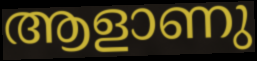
ആളാണു